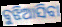
ବୁଝିଆସିବା